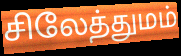
சிலேத்துமம்